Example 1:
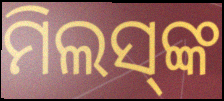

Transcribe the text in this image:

ମିଲସ୍‍ଙ୍କ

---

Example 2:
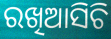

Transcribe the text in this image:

ରଖିଆସିଚି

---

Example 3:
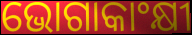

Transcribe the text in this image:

ଭୋଗାକାଂକ୍ଷୀ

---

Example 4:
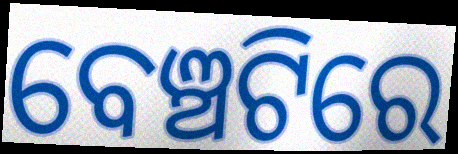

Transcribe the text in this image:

ବେଞ୍ଚଟିରେ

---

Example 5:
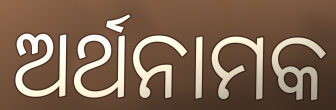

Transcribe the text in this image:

ଅର୍ଥନାମକ